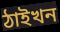
ঠাইখন